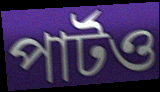
পার্টও